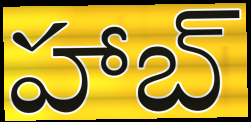
హాబ్